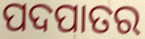
ପଦପାତର